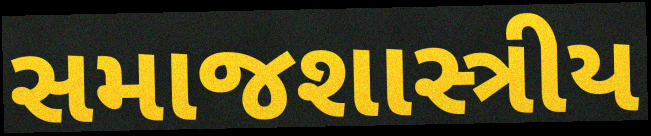
સમાજશાસ્ત્રીય